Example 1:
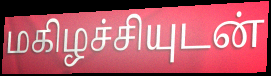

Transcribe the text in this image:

மகிழச்சியுடன்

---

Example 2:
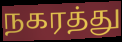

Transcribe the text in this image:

நகரத்து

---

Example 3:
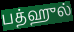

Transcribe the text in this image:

பத்ஹுல்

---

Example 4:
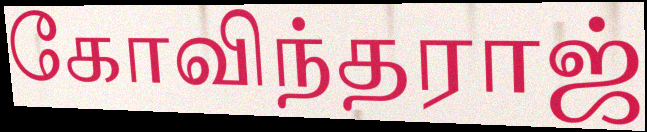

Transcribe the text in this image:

கோவிந்தராஜ்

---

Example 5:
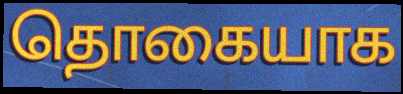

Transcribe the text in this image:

தொகையாக